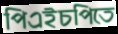
পিএইচপিতে